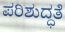
ಪರಿಶುದ್ಧತೆ